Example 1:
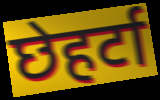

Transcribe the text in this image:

छेहर्टा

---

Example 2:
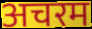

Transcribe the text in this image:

अचरम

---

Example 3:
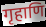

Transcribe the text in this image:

गृहाणि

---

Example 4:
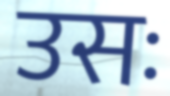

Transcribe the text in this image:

उसः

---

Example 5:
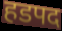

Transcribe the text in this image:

हडपद